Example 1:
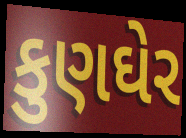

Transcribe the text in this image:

કુણઘેર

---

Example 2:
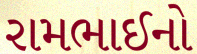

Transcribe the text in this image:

રામભાઈનો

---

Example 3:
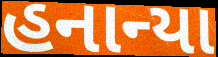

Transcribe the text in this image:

હનાન્યા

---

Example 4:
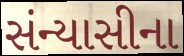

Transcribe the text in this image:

સંન્યાસીના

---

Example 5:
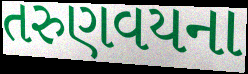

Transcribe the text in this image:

તરુણવયના